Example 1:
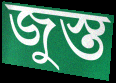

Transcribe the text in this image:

জুস্ত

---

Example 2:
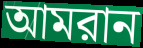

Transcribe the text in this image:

আমরান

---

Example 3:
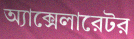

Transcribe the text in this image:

অ্যাক্সেলারেটর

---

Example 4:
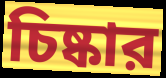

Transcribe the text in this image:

চিষ্কার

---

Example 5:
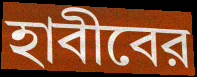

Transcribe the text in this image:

হাবীবের